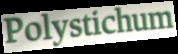
Polystichum